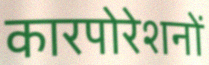
कारपोरेशनों